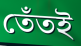
তেঁতই